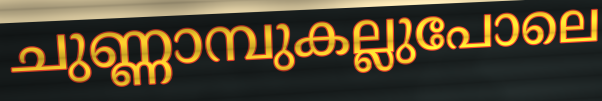
ചുണ്ണാമ്പുകല്ലുപോലെ